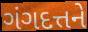
ગંગદત્તને